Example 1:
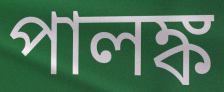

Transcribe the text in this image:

পালঙ্ক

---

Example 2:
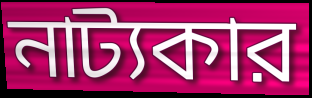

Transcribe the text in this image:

নাট্যকার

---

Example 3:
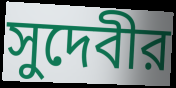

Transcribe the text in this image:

সুদেবীর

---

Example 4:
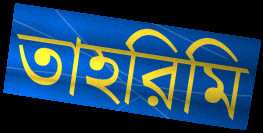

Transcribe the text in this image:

তাহরিমি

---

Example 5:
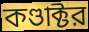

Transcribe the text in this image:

কণ্ডাক্টর